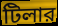
টিলার